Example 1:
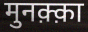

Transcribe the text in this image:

मुनक़्क़ा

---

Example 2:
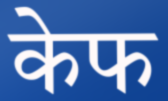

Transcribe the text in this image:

केफ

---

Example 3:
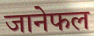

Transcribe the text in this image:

जानेफल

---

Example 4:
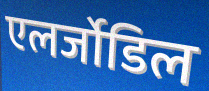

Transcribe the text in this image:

एलर्जोडिल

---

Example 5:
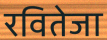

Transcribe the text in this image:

रवितेजा